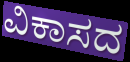
ವಿಕಾಸದ